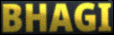
BHAGI